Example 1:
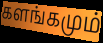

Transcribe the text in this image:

களங்கமும்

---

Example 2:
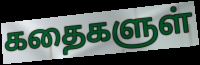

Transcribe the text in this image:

கதைகளுள்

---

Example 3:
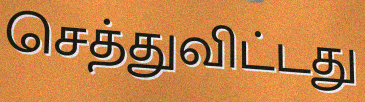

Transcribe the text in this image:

செத்துவிட்டது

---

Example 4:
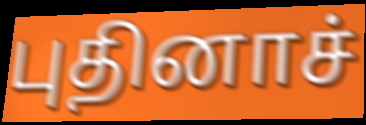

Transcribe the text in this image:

புதினாச்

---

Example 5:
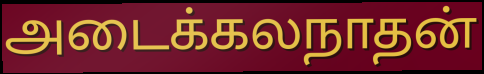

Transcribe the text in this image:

அடைக்கலநாதன்